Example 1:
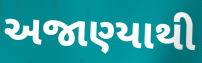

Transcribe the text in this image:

અજાણ્યાથી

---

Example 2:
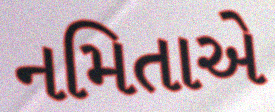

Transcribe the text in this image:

નમિતાએ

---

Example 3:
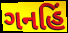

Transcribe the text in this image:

ગનહિં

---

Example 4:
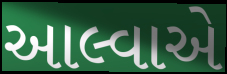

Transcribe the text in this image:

આલ્વાએ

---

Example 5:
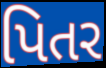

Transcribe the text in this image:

પિતર